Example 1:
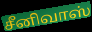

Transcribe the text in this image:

சீனிவாஸ்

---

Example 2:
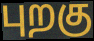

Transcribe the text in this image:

புறகு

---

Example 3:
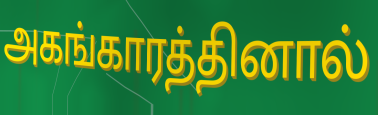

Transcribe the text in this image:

அகங்காரத்தினால்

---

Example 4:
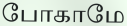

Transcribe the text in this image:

போகாமே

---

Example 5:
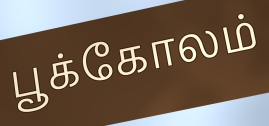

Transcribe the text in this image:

பூக்கோலம்